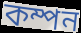
কম্পন